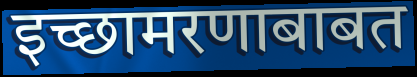
इच्छामरणाबाबत